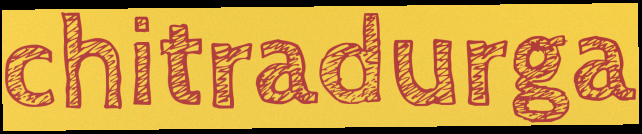
chitradurga